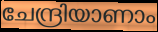
ചേന്ദ്രിയാണാം